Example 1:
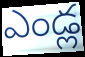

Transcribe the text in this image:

ఎండ్ల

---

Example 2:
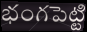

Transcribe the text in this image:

భంగపెట్టి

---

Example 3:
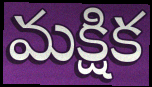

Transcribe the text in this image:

మక్షిక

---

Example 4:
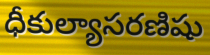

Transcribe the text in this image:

ధీకుల్యాసరణిషు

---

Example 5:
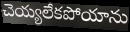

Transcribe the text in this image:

చెయ్యలేకపోయాను